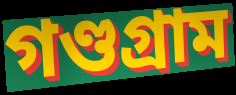
গণ্ডগ্রাম